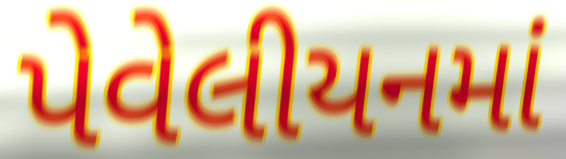
પેવેલીયનમાં